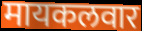
मायकलवार